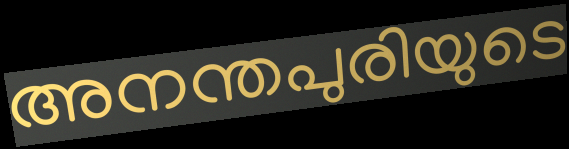
അനന്തപുരിയുടെ